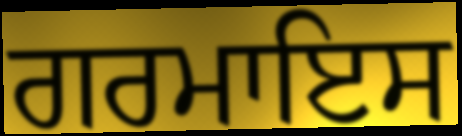
ਗਰਮਾਇਸ